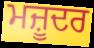
ਮਜ਼ੂਦਰ